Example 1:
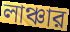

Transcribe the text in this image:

লাঞ্চার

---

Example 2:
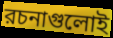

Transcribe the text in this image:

রচনাগুলোই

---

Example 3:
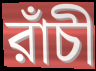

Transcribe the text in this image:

রাঁচী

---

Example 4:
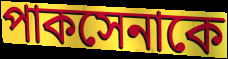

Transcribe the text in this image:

পাকসেনাকে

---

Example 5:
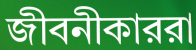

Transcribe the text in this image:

জীবনীকাররা